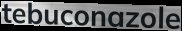
tebuconazole